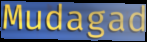
Mudagad